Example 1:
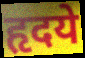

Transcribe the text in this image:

हृदये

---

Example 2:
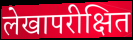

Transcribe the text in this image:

लेखापरीक्षित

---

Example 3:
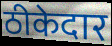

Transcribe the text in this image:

ठीकेदार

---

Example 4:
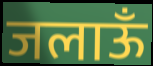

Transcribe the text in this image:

जलाऊँ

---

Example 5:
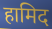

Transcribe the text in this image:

हामिद